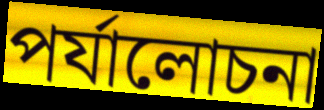
পৰ্যালোচনা